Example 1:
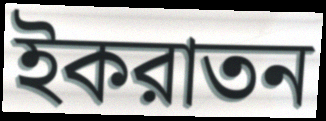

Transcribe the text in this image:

ইকরাতন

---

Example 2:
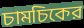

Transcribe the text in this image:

চামচিকের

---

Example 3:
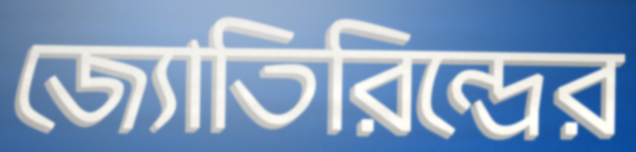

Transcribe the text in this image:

জ্যোতিরিন্দ্রের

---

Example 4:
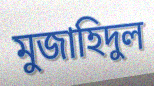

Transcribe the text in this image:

মুজাহিদুল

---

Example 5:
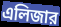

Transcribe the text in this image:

এলিজার